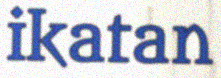
ikatan